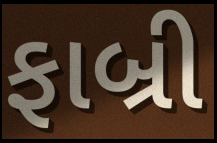
ફાબ્રી